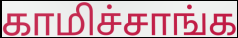
காமிச்சாங்க